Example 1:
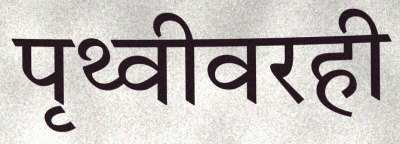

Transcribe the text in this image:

पृथ्वीवरही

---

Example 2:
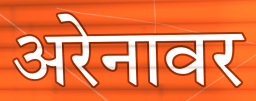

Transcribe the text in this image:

अरेनावर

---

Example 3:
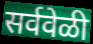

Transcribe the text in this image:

सर्ववेळी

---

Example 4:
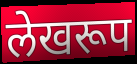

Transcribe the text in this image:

लेखरूप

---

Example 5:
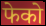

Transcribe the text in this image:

फेको